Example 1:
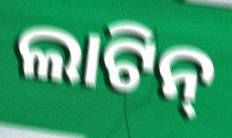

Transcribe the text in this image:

ଲାଟିନ୍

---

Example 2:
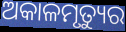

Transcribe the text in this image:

ଅକାଳମୃତ୍ୟୁର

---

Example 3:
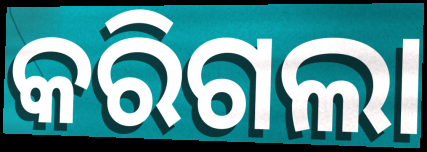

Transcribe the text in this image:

କରିଗଲା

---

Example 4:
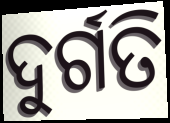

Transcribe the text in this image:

ଦୁର୍ଗତି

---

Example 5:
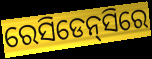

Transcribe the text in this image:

ରେସିଡେନ୍‌ସିରେ